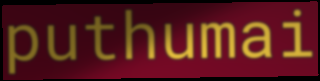
puthumai